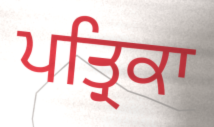
ਪਤ੍ਰਿਕਾ